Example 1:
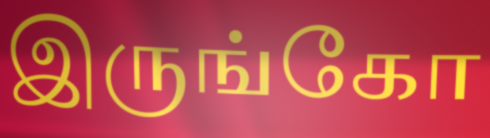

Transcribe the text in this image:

இருங்கோ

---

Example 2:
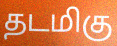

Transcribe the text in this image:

தடமிகு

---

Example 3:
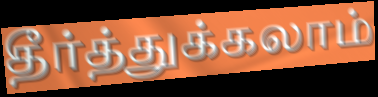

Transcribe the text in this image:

தீர்த்துக்கலாம்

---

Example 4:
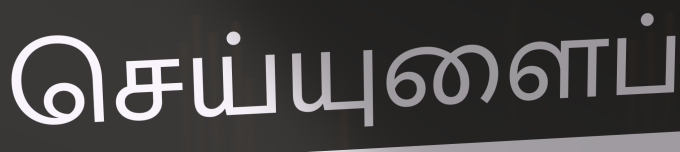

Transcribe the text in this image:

செய்யுளைப்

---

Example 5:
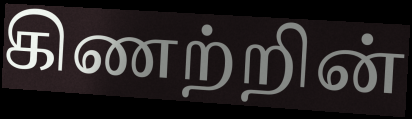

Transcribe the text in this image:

கிணற்றின்